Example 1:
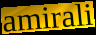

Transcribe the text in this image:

amirali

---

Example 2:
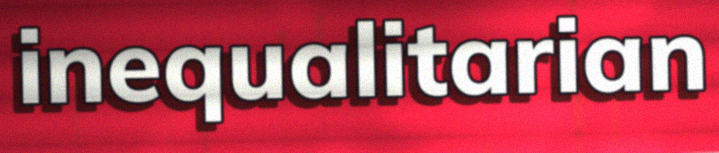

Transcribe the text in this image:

inequalitarian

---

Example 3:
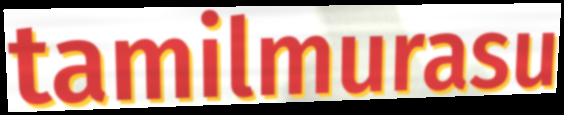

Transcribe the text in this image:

tamilmurasu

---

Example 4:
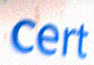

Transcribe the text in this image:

cert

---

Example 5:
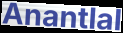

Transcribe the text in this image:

Anantlal